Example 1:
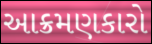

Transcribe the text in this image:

આક્રમણકારો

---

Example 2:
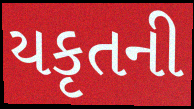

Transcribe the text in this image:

યકૃતની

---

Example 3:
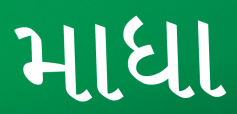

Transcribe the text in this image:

માધા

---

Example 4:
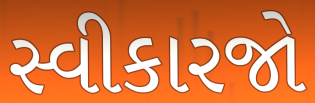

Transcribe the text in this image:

સ્વીકારજો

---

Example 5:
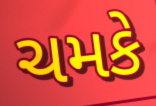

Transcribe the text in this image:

ચમકે